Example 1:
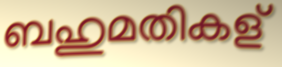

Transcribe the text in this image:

ബഹുമതികള്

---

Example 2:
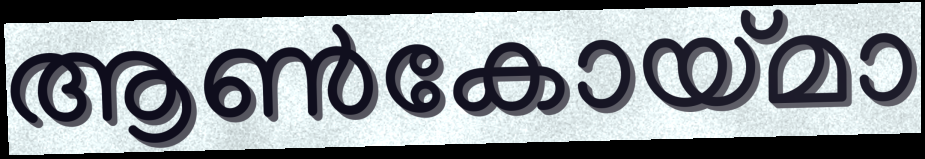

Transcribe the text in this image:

ആൺകോയ്മാ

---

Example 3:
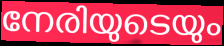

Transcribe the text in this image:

നേരിയുടെയും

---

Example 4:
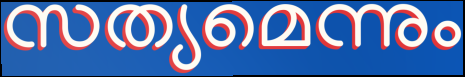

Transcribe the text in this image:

സത്യമെന്നും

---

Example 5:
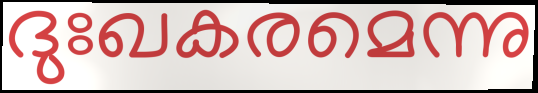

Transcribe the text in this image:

ദുഃഖകരമെന്നു